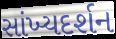
સાંખ્યદર્શન